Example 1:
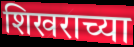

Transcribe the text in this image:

शिखराच्या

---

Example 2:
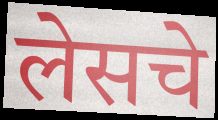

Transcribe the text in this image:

लेसचे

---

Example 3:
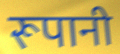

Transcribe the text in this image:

रूपानी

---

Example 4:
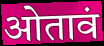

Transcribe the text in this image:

ओतावं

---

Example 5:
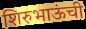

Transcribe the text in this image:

शिरुभाऊंची